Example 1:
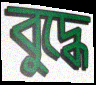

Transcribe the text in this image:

বুদ্ধে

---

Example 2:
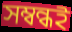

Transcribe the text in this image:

সম্বন্ধই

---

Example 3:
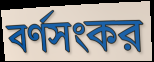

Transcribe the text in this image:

বর্ণসংকর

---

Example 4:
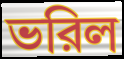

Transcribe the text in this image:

ভরিল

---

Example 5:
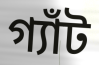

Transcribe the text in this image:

গ্যাঁট